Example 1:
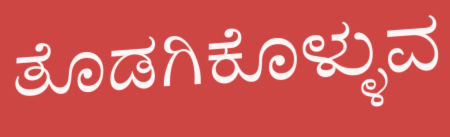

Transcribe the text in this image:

ತೊಡಗಿಕೊಳ್ಳುವ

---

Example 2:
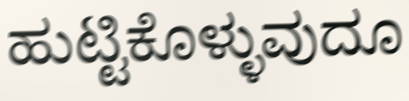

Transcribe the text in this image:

ಹುಟ್ಟಿಕೊಳ್ಳುವುದೂ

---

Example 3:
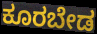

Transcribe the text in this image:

ಕೂರಬೇಡ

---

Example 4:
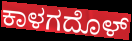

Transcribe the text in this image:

ಕಾಳಗದೊಳ್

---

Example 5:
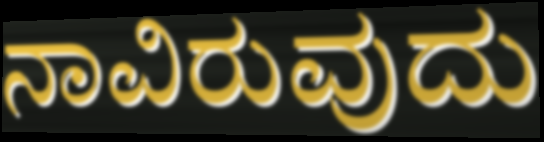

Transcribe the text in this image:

ನಾವಿರುವುದು